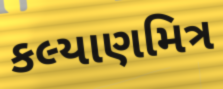
કલ્યાણમિત્ર